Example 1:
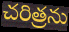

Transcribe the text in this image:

చరిత్రను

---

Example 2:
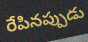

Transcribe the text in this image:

రేపినప్పుడు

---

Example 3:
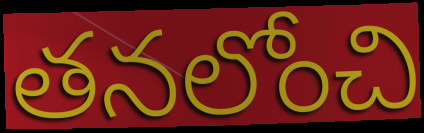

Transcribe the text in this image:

తనలోంచి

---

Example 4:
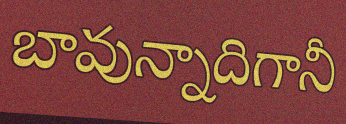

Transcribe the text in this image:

బావున్నాదిగానీ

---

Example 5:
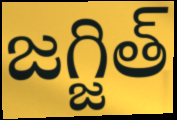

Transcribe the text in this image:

జగ్జిత్